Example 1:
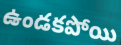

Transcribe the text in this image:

ఉండకపోయి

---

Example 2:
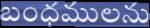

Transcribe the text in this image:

బంధములను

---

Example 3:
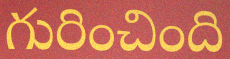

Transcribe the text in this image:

గురించింది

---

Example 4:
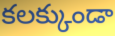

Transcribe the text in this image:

కలక్కుండా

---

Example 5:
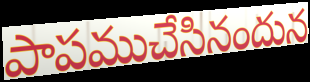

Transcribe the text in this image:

పాపముచేసినందున